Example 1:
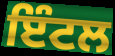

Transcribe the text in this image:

ਇੰਟਲ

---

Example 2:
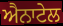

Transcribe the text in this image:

ਐਨਾਟੇਲ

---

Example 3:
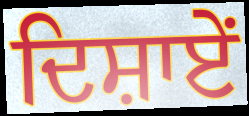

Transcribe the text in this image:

ਦਿਸ਼ਾਏਂ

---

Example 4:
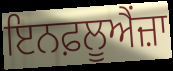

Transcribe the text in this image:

ਇਨਫ਼ਲੂਐਂਜ਼ਾ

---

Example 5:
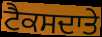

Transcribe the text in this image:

ਟੈਕਸਦਾਤੇ